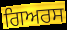
ਗਿਅਰਸ